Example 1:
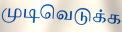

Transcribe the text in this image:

முடிவெடுக்க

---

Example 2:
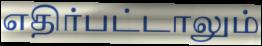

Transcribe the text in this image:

எதிர்பட்டாலும்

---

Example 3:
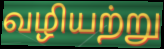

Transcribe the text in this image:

வழியற்று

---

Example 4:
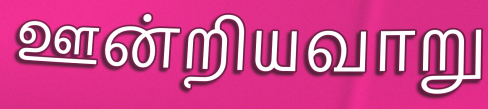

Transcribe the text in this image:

ஊன்றியவாறு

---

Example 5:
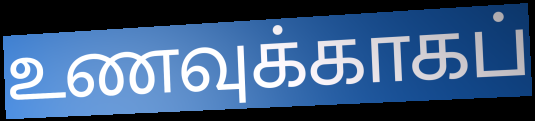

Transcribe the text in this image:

உணவுக்காகப்